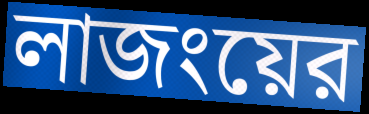
লাজংয়ের